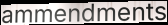
ammendments